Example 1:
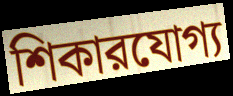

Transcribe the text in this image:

শিকারযোগ্য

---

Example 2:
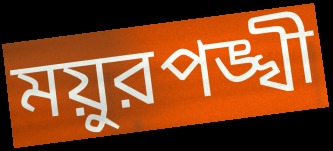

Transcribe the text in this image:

ময়ুরপঙ্খী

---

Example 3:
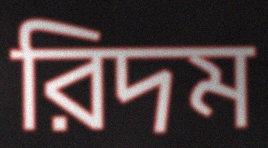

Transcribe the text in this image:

রিদম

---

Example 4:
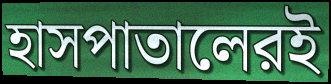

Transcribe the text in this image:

হাসপাতালেরই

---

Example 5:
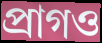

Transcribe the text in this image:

প্রাগও